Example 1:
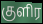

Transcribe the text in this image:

குளிர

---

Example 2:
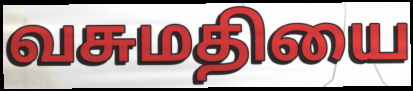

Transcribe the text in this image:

வசுமதியை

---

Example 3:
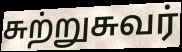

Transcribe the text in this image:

சுற்றுசுவர்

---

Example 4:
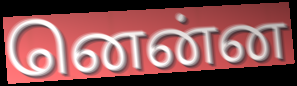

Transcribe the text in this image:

னென்ன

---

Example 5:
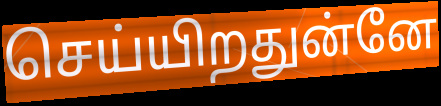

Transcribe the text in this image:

செய்யிறதுன்னே